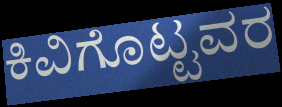
ಕಿವಿಗೊಟ್ಟವರ